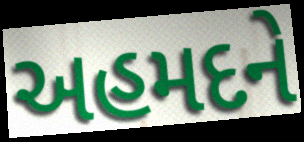
અહમદને